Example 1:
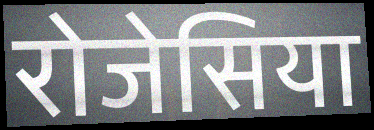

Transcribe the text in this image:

रोजेसिया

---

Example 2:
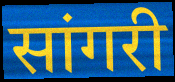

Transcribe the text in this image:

सांगरी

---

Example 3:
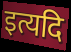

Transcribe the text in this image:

इत्यदि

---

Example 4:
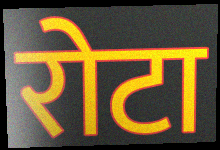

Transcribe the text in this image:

रोटा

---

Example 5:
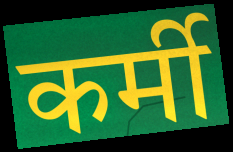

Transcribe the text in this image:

कर्मी